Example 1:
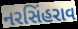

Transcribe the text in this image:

નરસિંહરાવ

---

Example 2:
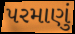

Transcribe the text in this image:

પરમાણું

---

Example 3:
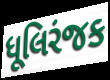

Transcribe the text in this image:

ધૂલિરંજક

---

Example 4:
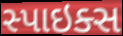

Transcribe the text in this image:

સ્પાઇક્સ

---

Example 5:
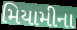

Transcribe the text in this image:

મિયામીના